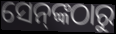
ସେନ୍‌ଙ୍କଠାରୁ